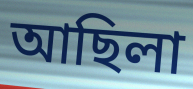
আছিলা